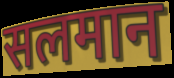
सलमान